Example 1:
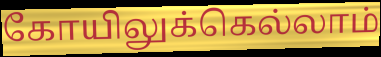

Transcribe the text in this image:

கோயிலுக்கெல்லாம்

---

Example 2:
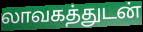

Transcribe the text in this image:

லாவகத்துடன்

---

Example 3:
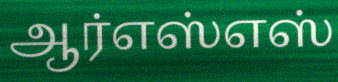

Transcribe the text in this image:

ஆர்எஸ்எஸ்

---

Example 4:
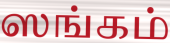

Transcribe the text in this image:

ஸங்கம்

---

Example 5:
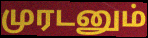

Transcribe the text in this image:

முரடனும்